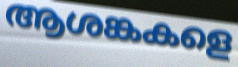
ആശങ്കകളെ